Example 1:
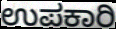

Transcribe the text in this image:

ಉಪಕಾರಿ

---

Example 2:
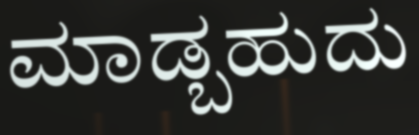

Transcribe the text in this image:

ಮಾಡ್ಬಹುದು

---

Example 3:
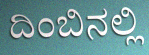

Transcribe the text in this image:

ದಿಂಬಿನಲ್ಲಿ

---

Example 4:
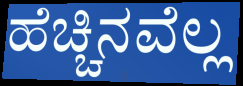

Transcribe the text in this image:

ಹೆಚ್ಚಿನವೆಲ್ಲ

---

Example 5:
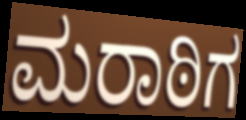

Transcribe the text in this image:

ಮರಾಠಿಗ